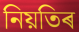
নিয়তিৰ